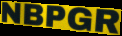
NBPGR